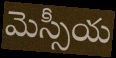
మెస్సీయ